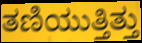
ತಣಿಯುತ್ತಿತ್ತು